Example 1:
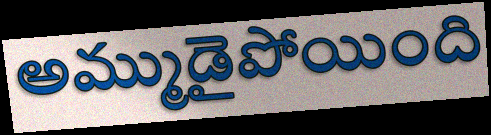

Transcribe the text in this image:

అమ్ముడైపోయింది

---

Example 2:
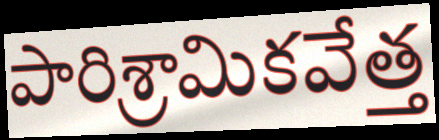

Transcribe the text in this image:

పారిశ్రామికవేత్త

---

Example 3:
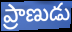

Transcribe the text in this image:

ప్రాణుడు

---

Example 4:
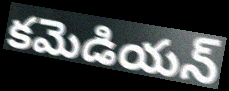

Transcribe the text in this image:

కమెడియన్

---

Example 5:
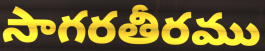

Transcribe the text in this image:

సాగరతీరము